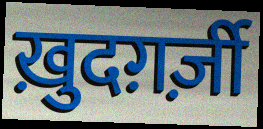
ख़ुदग़र्ज़ी